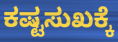
ಕಷ್ಟಸುಖಕ್ಕೆ